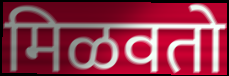
मिळवतो